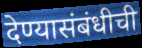
देण्यासंबंधीची